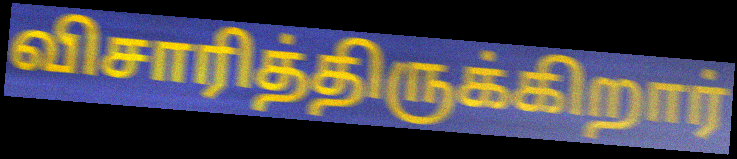
விசாரித்திருக்கிறார்